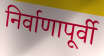
निर्वाणापूर्वी